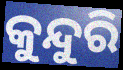
କୁନ୍ଦୁରି